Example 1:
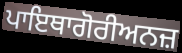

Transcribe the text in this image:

ਪਾਇਥਾਗੋਰੀਅਨਜ਼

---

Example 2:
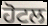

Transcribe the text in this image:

ਹੋਟਲ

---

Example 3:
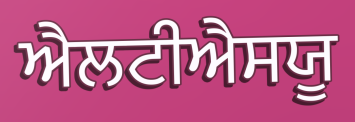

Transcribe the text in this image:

ਐਲਟੀਐਸਯੂ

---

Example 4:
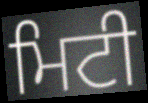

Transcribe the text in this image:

ਮਿਟੀ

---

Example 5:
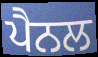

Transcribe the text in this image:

ਪੈਨਲ